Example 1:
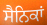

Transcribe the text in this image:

ਸੈਨਿਕਾਂ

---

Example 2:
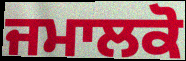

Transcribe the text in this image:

ਜਮਾਲਕੋ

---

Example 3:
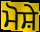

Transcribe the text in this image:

ਮੋਸ਼ੇ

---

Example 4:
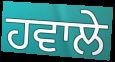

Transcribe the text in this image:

ਹਵਾਲੇ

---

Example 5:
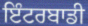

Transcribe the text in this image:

ਇੰਟਰਬਾਡੀ